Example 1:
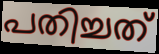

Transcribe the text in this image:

പതിച്ചത്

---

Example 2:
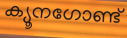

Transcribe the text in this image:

ക്യൂനഗോണ്ട്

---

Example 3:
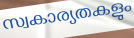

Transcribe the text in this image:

സ്വകാര്യതകളും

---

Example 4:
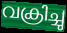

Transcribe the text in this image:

വക്രിച്ചു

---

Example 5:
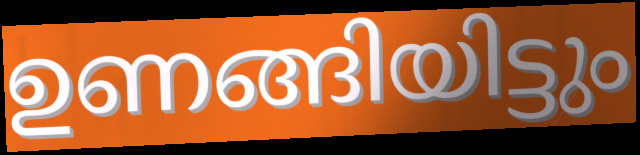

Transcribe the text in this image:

ഉണങ്ങിയിട്ടും